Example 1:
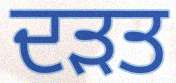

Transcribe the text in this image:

ਦੜਤ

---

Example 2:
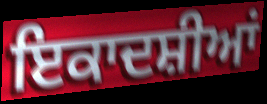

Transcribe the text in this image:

ਇਕਾਦਸ਼ੀਆਂ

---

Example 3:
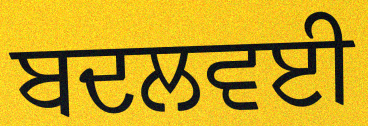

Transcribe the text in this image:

ਬਦਲਵਈ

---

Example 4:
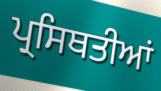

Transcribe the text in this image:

ਪ੍ਰਸਿਥਤੀਆਂ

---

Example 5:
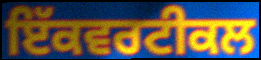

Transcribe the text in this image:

ਇੱਕਵਰਟੀਕਲ